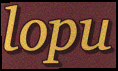
lopu